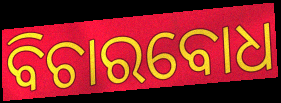
ବିଚାରବୋଧ